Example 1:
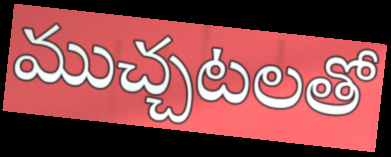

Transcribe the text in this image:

ముచ్చటలతో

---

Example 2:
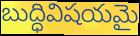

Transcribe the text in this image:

బుద్ధివిషయమై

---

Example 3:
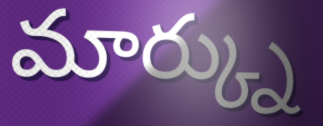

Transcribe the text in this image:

మార్క్ను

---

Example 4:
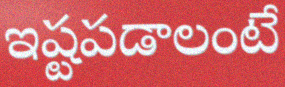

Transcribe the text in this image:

ఇష్టపడాలంటే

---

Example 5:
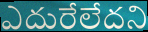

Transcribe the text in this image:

ఎదురేలేదని